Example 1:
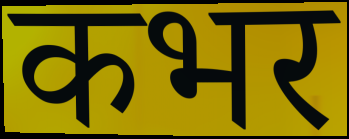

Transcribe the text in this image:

कभर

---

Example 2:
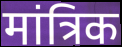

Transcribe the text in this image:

मांत्रिक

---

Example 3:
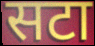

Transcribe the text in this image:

सटा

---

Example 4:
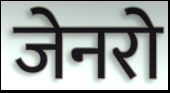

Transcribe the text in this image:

जेनरो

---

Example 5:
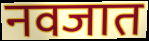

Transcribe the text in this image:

नवजात